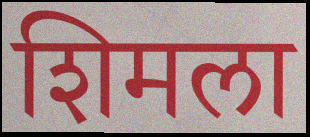
शिमला